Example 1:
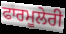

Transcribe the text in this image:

ਫਾਰਮੂਲੇਰੀ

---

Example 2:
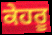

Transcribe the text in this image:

ਕੇਹਰੂ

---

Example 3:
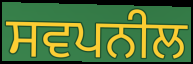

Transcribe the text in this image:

ਸਵਪਨੀਲ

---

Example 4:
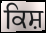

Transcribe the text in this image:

ਕਿਸ਼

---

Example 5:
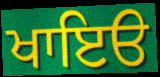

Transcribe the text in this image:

ਖਾਇੳ